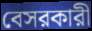
বেসরকারী